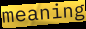
meaning